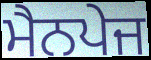
ਮੈਨਪੇਜ